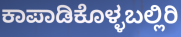
ಕಾಪಾಡಿಕೊಳ್ಳಬಲ್ಲಿರಿ